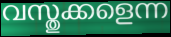
വസ്തുക്കളെന്ന